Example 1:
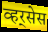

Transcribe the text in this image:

व्हर्सेस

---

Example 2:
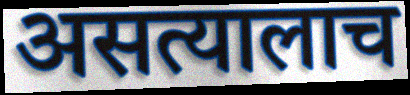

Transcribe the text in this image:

असत्यालाच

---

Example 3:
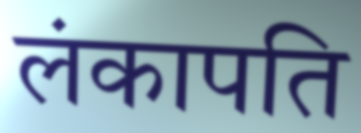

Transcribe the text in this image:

लंकापति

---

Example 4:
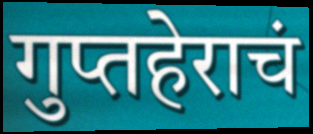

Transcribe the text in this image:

गुप्तहेराचं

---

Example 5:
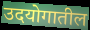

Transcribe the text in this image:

उदयोगातील